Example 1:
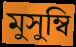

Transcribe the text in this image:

মুসুম্বি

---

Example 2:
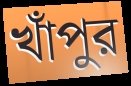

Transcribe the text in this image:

খাঁপুর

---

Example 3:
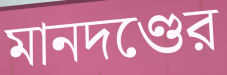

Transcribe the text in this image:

মানদণ্ডের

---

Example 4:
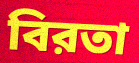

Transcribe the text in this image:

বিরতা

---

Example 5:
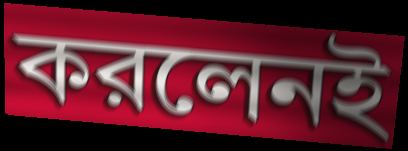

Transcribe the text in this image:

করলেনই